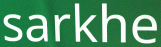
sarkhe